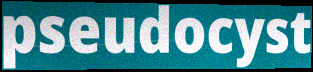
pseudocyst